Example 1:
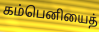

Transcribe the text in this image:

கம்பெனியைத்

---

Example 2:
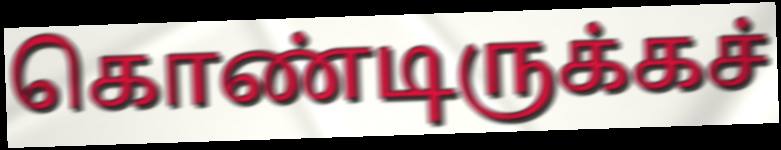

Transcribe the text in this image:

கொண்டிருக்கச்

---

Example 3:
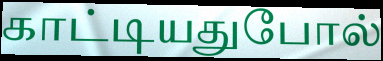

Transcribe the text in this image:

காட்டியதுபோல்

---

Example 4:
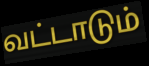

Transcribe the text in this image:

வட்டாடும்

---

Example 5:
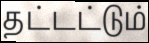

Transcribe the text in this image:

தட்டட்டும்